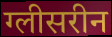
ग्लीसरीन